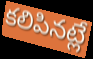
కలిపినట్లే